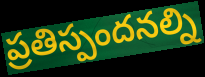
ప్రతిస్పందనల్ని